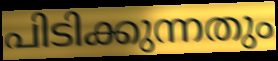
പിടിക്കുന്നതും